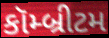
કૉમ્બ્રીટમ